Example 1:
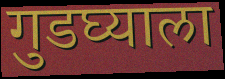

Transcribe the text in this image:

गुडघ्याला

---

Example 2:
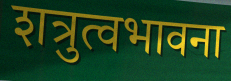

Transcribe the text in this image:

शत्रुत्वभावना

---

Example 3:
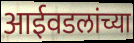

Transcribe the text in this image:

आईवडलांच्या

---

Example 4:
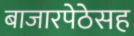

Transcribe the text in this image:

बाजारपेठेसह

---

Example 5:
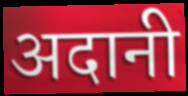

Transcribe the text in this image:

अदानी